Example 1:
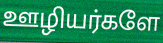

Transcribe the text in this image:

ஊழியர்களே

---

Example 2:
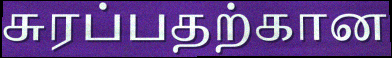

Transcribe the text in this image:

சுரப்பதற்கான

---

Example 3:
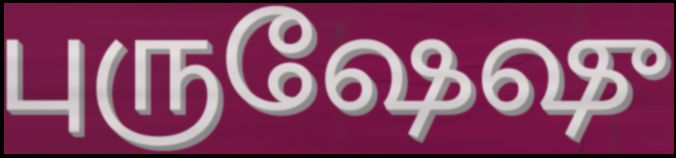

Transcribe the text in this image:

புருஷேஷு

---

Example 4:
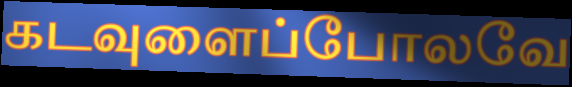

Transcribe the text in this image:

கடவுளைப்போலவே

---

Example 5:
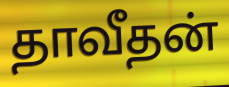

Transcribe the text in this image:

தாவீதன்